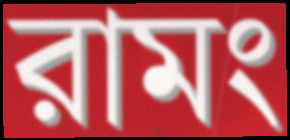
রামং